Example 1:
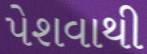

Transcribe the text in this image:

પેશવાથી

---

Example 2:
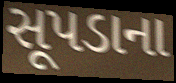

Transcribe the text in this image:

સૂપડાના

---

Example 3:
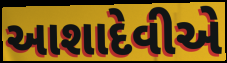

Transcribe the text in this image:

આશાદેવીએ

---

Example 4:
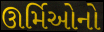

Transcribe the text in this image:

ઊર્મિઓનો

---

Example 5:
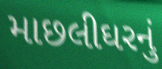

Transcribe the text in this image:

માછલીઘરનું